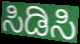
ಸಿಡಿಸಿ